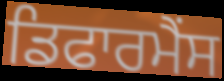
ਡਿਫਾਰਮੈਂਸ